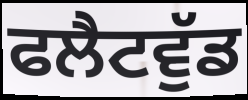
ਫਲੈਟਵੁੱਡ